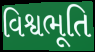
વિશ્વભૂતિ